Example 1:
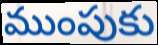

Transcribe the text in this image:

ముంపుకు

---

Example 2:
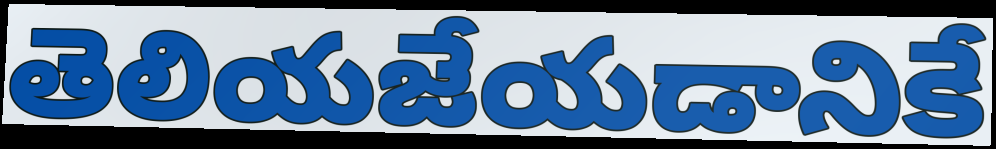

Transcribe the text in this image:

తెలియజేయడానికే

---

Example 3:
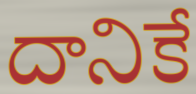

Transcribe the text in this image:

దానికే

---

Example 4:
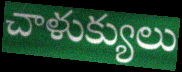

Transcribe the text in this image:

చాళుక్యులు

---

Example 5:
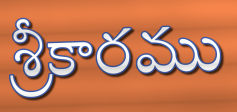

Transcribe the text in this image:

శ్రీకారము